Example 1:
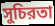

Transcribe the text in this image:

সুচিরতা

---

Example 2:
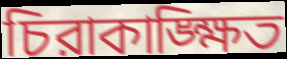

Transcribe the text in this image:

চিরাকাঙ্ক্ষিত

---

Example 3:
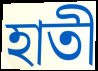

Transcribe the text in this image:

হাতী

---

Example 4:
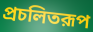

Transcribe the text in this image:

প্রচলিতরূপ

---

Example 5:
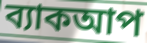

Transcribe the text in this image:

ব্যাকআপ